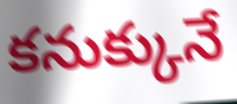
కనుక్కునే